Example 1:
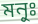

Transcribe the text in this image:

মনুঃ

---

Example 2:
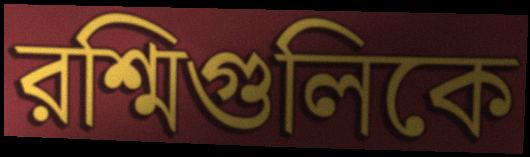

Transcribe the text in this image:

রশ্মিগুলিকে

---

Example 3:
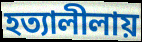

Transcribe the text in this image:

হত্যালীলায়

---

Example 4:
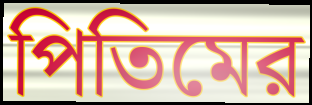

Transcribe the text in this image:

পিতিমের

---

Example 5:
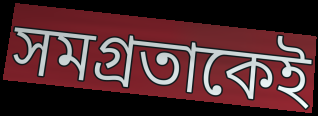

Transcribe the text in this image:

সমগ্রতাকেই